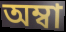
অম্বা